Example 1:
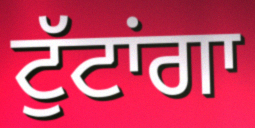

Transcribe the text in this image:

ਟੁੱਟਾਂਗਾ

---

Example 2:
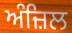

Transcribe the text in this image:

ਅੰਜ਼ਿਲ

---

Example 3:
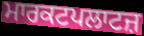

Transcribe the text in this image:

ਮਾਰਕਟਪਲਾਟਜ਼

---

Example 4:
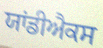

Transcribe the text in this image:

ਯਾਂਡੀਐਕਸ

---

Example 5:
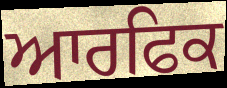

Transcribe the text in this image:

ਆਰਫਿਕ